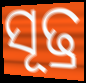
ସୂଢ୍ର